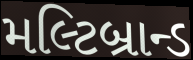
મલ્ટિબ્રાન્ડ